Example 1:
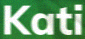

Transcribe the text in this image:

Kati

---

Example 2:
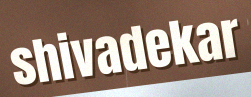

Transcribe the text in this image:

shivadekar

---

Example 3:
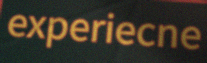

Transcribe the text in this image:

experiecne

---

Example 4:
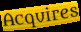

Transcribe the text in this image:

Acquires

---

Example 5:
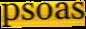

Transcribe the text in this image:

psoas